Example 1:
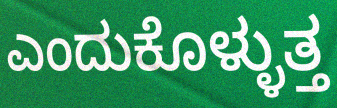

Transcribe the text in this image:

ಎಂದುಕೊಳ್ಳುತ್ತ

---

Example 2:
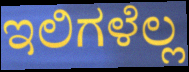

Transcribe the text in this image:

ಇಲಿಗಳೆಲ್ಲ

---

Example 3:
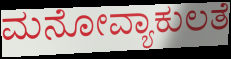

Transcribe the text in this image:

ಮನೋವ್ಯಾಕುಲತೆ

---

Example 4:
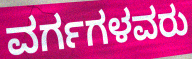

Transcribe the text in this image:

ವರ್ಗಗಳವರು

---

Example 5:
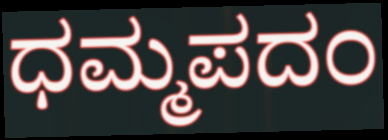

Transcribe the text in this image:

ಧಮ್ಮಪದಂ